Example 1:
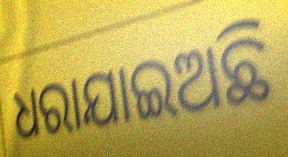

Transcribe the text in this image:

ଧରାଯାଇଅଛି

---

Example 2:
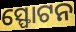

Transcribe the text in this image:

ସ୍ଫୋଟନ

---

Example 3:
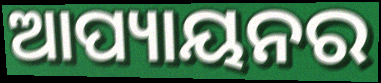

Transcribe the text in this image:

ଆପ୍ୟାୟନର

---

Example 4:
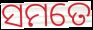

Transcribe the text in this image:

ସମତେ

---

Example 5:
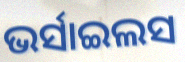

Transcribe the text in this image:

ଭର୍ସାଇଲସ